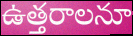
ఉత్తరాలనూ